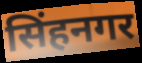
सिंहनगर